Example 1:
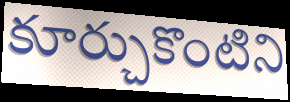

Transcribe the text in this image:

కూర్చుకొంటిని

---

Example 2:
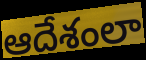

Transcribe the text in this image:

ఆదేశంలా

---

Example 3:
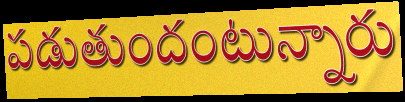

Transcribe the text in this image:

పడుతుందంటున్నారు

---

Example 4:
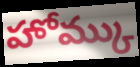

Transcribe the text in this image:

హోమ్కు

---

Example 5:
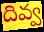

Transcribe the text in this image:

దివ్వ